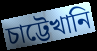
চাট্টেখানি